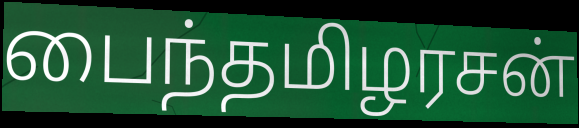
பைந்தமிழரசன்